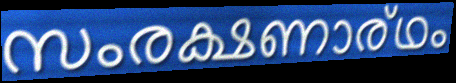
സംരക്ഷണാര്ഥം